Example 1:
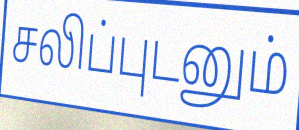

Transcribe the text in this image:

சலிப்புடனும்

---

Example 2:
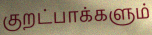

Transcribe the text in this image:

குறட்பாக்களும்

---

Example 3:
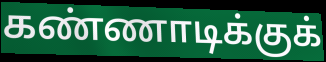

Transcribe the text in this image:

கண்ணாடிக்குக்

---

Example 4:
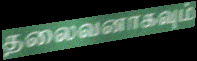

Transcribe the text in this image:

தலைவனாகவும்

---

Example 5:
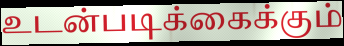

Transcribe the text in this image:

உடன்படிக்கைக்கும்